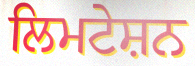
ਲਿਮਟੇਸ਼ਨ